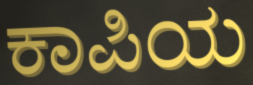
ಕಾಪಿಯ